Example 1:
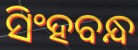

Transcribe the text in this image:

ସିଂହବନ୍ଧ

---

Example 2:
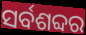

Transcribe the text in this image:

ସର୍ବଶବ୍ଦର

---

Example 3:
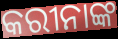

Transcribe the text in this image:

କରୀନାଙ୍କ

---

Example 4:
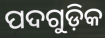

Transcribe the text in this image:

ପଦଗୁଡ଼ିକ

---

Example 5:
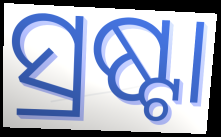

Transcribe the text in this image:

ସ୍ରଷ୍ଟା